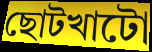
ছোটখাটো